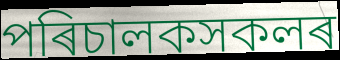
পৰিচালকসকলৰ